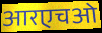
आरएचओ